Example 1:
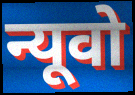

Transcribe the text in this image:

न्यूवो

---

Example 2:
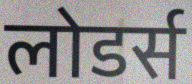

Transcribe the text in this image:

लोडर्स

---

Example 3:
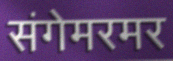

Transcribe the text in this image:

संगेमरमर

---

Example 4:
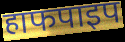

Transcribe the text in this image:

हाफपाइप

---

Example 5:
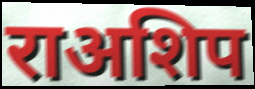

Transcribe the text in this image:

राअशिप